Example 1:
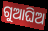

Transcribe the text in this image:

ଗୁଆଘିଅ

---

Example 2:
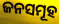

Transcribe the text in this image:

ଜନସମୂହ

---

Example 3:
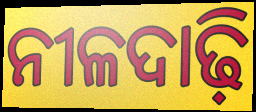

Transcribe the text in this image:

ନୀଳଦାଢ଼ି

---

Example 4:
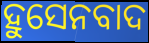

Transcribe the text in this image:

ହୁସେନବାଦ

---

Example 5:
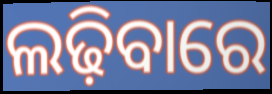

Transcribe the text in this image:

ଲଢ଼ିବାରେ